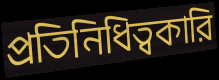
প্রতিনিধিত্বকারি